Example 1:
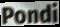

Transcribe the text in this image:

Pondi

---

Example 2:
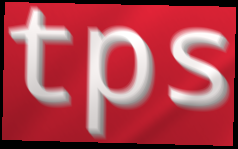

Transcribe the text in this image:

tps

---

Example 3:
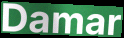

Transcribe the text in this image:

Damar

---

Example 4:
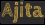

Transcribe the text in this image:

Ajita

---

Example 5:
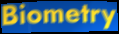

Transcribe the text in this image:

Biometry